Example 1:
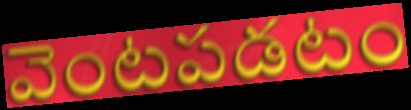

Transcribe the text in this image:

వెంటపడటం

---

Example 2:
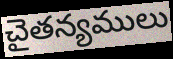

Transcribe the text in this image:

చైతన్యములు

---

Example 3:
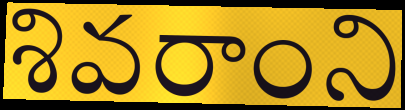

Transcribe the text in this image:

శివరాంని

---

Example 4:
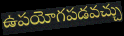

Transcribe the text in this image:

ఉపయోగపడవచ్చు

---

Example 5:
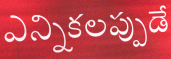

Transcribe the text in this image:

ఎన్నికలప్పుడే